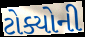
ટોક્યોની